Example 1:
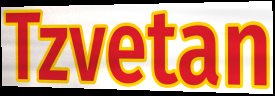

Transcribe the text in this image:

Tzvetan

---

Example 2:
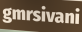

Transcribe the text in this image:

gmrsivani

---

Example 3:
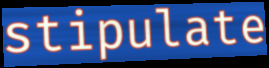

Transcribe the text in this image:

stipulate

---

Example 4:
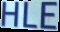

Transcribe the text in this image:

HLE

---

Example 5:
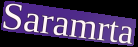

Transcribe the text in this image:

Saramrta